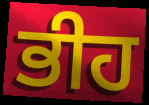
ਭੀਹ